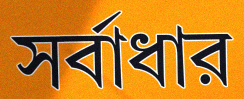
সর্বাধার